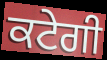
ਕਟੇਗੀ